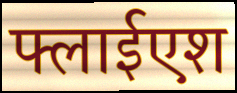
फ्लाईएश